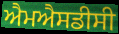
ਐਮਐਸਡੀਸੀ